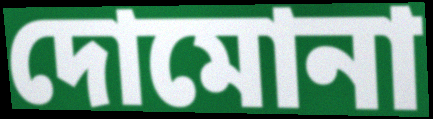
দোমোনা